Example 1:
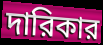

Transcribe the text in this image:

দারিকার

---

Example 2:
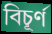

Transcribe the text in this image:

বিচূর্ণ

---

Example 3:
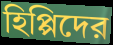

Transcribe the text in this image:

হিপ্পিদের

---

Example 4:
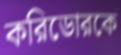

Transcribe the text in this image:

করিডোরকে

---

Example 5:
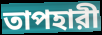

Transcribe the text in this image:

তাপহারী